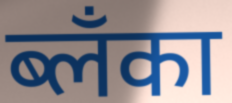
ब्लँका